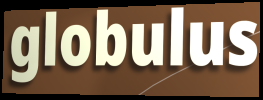
globulus